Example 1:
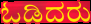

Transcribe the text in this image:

ಓಡಿದರು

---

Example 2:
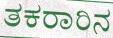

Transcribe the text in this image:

ತಕರಾರಿನ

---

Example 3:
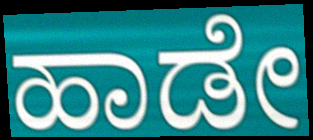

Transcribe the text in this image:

ಹಾಡೇ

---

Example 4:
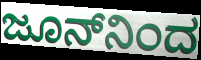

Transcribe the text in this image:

ಜೂನ್‌ನಿಂದ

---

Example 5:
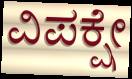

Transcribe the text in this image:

ವಿಪಕ್ಷೇ